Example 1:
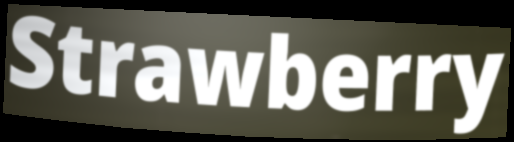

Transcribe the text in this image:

Strawberry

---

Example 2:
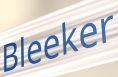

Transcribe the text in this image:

Bleeker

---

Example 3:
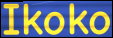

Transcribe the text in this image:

Ikoko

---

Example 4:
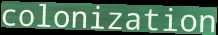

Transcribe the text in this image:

colonization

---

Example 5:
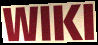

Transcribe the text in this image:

WIKI